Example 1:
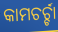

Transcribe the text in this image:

କାମଚର୍ଚ୍ଚା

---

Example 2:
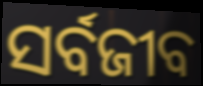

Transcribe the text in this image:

ସର୍ବଜୀବ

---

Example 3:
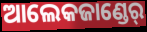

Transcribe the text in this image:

ଆଲେକଜାଣ୍ଡେର୍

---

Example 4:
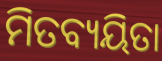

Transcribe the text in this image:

ମିତବ୍ୟୟିତା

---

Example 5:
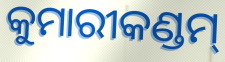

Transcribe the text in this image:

କୁମାରୀକଣ୍ଡମ୍